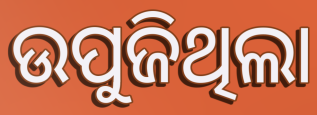
ଉପୁଜିଥିଲା